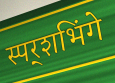
स्पर्शभिंगे